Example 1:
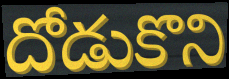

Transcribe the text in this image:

దోడుకొని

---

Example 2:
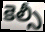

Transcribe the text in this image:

కెల్సీ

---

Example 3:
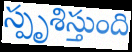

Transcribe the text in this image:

స్పృశిస్తుంది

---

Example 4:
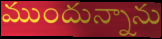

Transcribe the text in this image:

ముందున్నాను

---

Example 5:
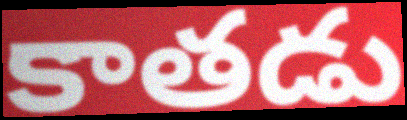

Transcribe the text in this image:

కాతడు